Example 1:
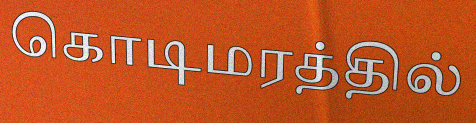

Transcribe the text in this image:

கொடிமரத்தில்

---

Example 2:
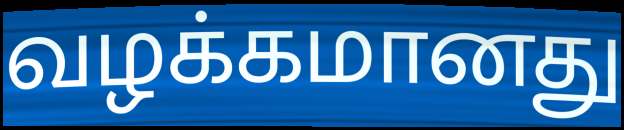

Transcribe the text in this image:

வழக்கமானது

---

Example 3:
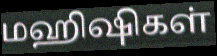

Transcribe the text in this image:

மஹிஷிகள்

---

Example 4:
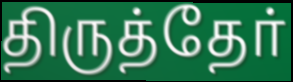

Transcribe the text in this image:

திருத்தேர்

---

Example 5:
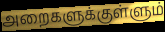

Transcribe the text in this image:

அறைகளுக்குள்ளும்